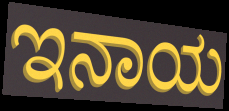
ಇನಾಯ